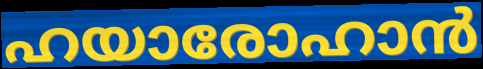
ഹയാരോഹാൻ